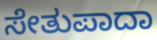
ಸೇತುಪಾದಾ